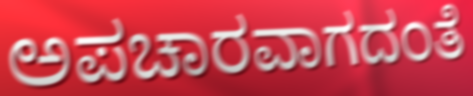
ಅಪಚಾರವಾಗದಂತೆ